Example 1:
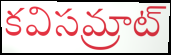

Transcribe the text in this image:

కవిసమ్రాట్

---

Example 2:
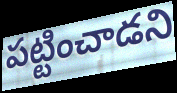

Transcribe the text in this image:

పట్టించాడని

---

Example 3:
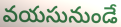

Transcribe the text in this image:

వయసునుండే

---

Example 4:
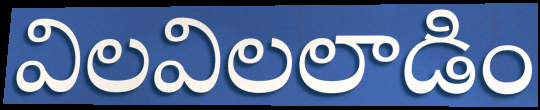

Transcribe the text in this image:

విలవిలలాడిం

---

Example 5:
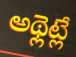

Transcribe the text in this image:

అథ్లెట్లే